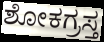
ಶೋಕಗ್ರಸ್ತ